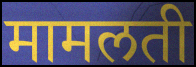
मामलती